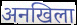
अनखिला